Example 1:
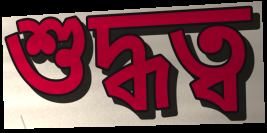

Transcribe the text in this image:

শুদ্ধত্ব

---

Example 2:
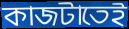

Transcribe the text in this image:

কাজটাতেই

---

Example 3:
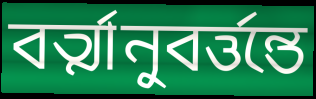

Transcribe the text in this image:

বর্ত্মানুবর্ত্তন্তে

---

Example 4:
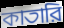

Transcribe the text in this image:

কাতারি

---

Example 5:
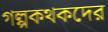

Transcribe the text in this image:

গল্পকথকদের